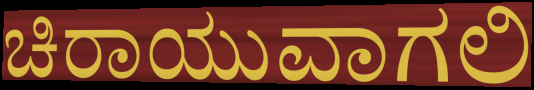
ಚಿರಾಯುವಾಗಲಿ